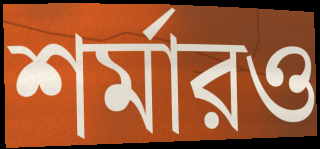
শর্মারও